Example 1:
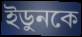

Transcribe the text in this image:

ইডুনকে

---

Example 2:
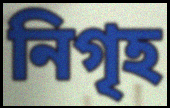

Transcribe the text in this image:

নিগৃহ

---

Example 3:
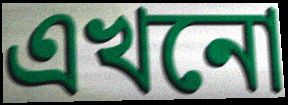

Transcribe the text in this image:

এখনো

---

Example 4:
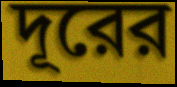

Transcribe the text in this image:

দূরের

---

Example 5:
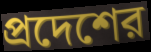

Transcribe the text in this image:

প্রদেশের